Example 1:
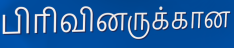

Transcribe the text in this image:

பிரிவினருக்கான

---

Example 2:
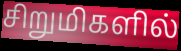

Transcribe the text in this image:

சிறுமிகளில்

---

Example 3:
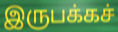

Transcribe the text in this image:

இருபக்கச்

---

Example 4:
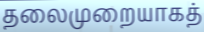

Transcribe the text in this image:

தலைமுறையாகத்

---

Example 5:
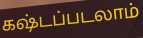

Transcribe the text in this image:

கஷ்டப்படலாம்